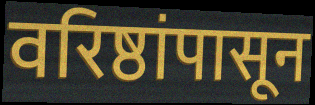
वरिष्ठांपासून